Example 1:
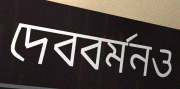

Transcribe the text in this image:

দেববর্মনও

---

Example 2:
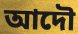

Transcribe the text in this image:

আদৌ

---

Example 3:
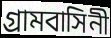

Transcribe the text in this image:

গ্রামবাসিনী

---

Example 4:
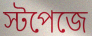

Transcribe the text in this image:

স্টপেজে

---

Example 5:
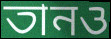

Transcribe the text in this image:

তানও